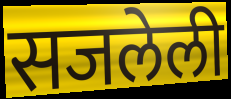
सजलेली